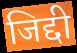
जिद्दी